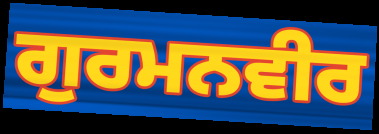
ਗੁਰਮਨਵੀਰ